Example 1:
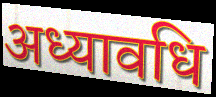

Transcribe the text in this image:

अध्यावधि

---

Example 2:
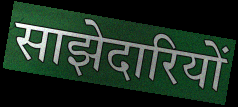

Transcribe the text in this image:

साझेदारियों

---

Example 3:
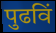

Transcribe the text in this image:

पुढविं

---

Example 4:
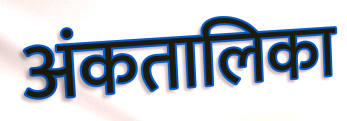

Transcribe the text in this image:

अंकतालिका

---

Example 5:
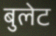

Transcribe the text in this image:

बुलेट